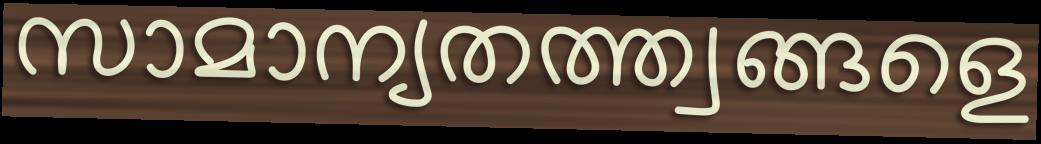
സാമാന്യതത്ത്വങ്ങളെ